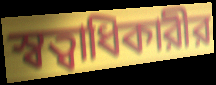
স্বত্বাধিকারীর